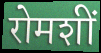
रोमशीं